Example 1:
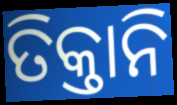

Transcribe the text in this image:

ତିକ୍ତାନି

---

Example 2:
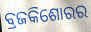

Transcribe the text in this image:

ବ୍ରଜକିଶୋରର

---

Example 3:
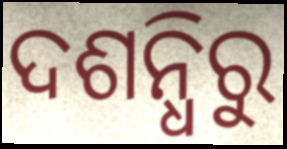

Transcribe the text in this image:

ଦଶନ୍ଧିରୁ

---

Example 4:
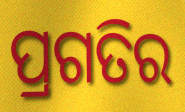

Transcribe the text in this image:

ପ୍ରଗତିର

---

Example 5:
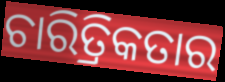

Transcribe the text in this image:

ଚାରିତ୍ରିକତାର